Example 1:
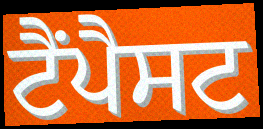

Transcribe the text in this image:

ਟੈਂਪੈਸਟ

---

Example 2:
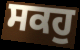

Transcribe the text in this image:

ਸਕਹੁ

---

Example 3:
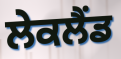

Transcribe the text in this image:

ਲੇਕਲੈਂਡ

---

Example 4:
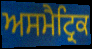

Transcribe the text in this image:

ਅਸਮੈਟ੍ਰਿਕ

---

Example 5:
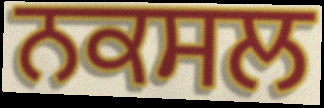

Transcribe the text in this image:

ਨਕਸਲ